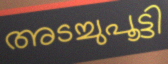
അടച്ചുപൂട്ടി